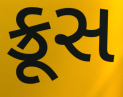
ક્રૂસ